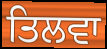
ਤਿਲਵਾ